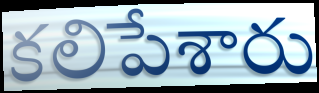
కలిపేశారు